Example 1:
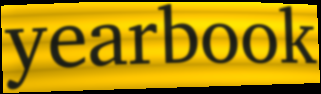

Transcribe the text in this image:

yearbook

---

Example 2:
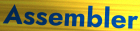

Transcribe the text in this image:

Assembler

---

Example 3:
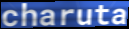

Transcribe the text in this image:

charuta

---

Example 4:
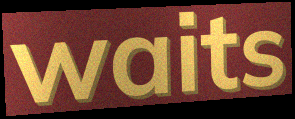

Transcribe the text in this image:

waits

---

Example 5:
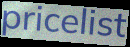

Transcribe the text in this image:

pricelist